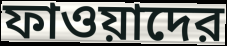
ফাওয়াদের